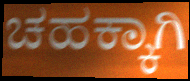
ಚಹಕ್ಕಾಗಿ